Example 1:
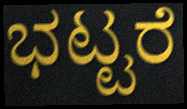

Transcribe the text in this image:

ಭಟ್ಟರೆ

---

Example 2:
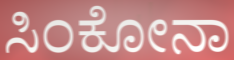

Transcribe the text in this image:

ಸಿಂಕೋನಾ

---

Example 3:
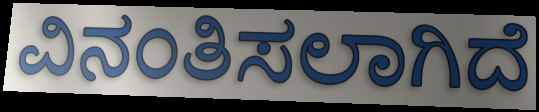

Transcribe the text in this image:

ವಿನಂತಿಸಲಾಗಿದೆ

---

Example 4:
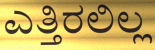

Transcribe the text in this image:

ಎತ್ತಿರಲಿಲ್ಲ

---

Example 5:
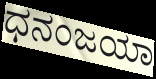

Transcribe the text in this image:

ಧನಂಜಯಾ